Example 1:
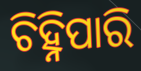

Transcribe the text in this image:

ଚିହ୍ନିପାରି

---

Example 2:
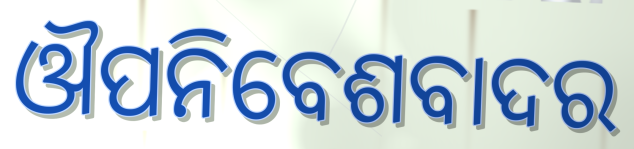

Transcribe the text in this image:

ଔପନିବେଶବାଦର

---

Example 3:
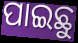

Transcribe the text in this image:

ପାଇଛୁ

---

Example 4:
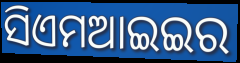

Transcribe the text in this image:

ସିଏମଆଇଇର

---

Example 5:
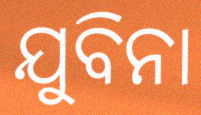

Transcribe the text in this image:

ଯୁବିନା